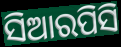
ସିଆରପିସି